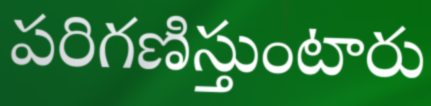
పరిగణిస్తుంటారు